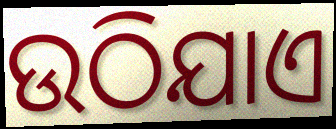
ଉଠିଯାଏ